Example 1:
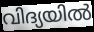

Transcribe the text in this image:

വിദ്യയിൽ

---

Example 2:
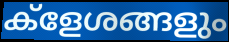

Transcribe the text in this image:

ക്ളേശങ്ങളും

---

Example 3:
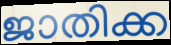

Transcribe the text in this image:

ജാതിക്ക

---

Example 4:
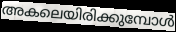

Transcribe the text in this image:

അകലെയിരിക്കുമ്പോൾ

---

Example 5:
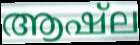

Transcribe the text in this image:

ആഷ്ല